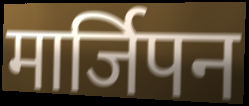
मार्जिपन